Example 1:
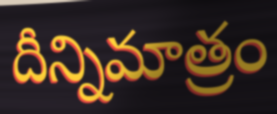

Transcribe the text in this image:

దీన్నిమాత్రం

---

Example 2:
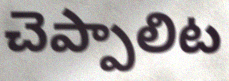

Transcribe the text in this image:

చెప్పాలిట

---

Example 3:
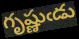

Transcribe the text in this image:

గృష్ణుఁడు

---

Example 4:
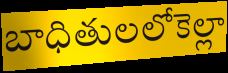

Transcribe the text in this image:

బాధితులలోకెల్లా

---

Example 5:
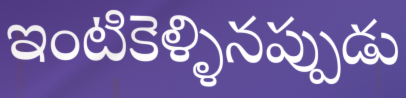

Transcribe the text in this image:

ఇంటికెళ్ళినప్పుడు